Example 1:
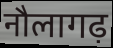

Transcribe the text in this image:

नौलागढ़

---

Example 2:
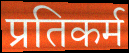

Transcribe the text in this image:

प्रतिकर्म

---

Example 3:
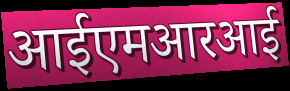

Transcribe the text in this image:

आईएमआरआई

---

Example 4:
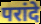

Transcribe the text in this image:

परांदे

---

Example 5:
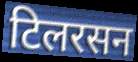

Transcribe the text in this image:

टिलरसन